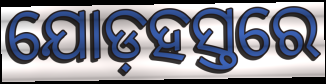
ଯୋଡ଼ହସ୍ତରେ